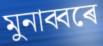
মুনাব্বৰে